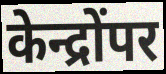
केन्द्रोंपर